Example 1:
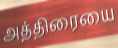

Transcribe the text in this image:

அத்திரையை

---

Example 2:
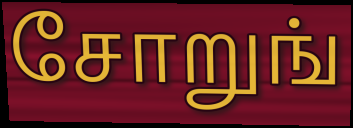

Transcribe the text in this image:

சோறுங்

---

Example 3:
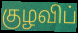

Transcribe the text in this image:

குழவிப்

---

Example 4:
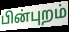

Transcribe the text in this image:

பின்புறம்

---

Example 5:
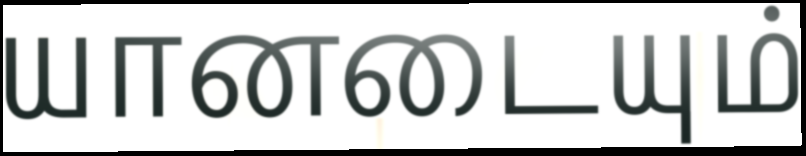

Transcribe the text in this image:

யானடையும்